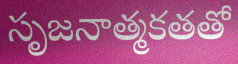
సృజనాత్మకతతో